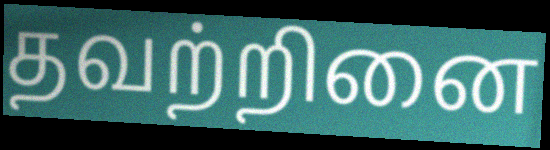
தவற்றினை